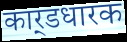
कार्डधारक